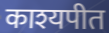
काश्यपीत